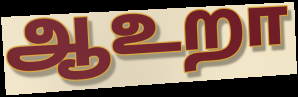
ஆஉறா